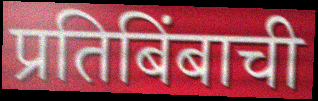
प्रतिबिंबाची